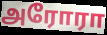
அரோரா